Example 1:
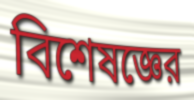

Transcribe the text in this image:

বিশেষজ্ঞের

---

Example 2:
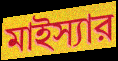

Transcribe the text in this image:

মাইস্যার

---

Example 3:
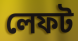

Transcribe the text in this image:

লেফট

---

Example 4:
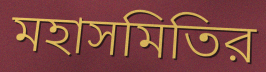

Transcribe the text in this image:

মহাসমিতির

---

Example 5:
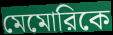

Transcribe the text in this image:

মেমোরিকে